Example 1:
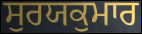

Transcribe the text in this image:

ਸੁਰਯਕੁਮਾਰ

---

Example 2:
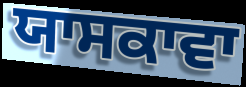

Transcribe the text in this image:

ਯਾਸਕਾਵਾ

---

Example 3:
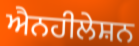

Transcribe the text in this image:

ਐਨਹੀਲੇਸ਼ਨ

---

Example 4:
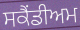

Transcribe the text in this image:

ਸਕੈਂਡੀਅਮ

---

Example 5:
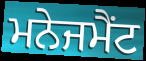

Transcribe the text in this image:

ਮਨੇਜਮੈਂਟ